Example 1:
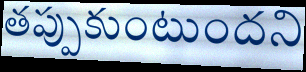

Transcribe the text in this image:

తప్పుకుంటుందని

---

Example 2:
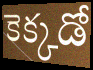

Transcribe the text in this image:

కెక్కడో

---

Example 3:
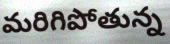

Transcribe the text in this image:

మరిగిపోతున్న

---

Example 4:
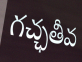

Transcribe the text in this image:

గచ్ఛతీవ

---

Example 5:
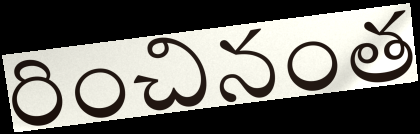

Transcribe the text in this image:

రించినంత